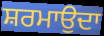
ਸ਼ਰਮਾਉਦਾ